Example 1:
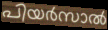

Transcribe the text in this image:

പിയർസാൽ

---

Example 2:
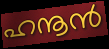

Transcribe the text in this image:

ഹനൂൻ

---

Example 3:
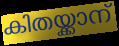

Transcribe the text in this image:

കിതയ്ക്കാന്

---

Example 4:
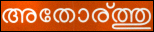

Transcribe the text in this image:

അതോര്ത്തു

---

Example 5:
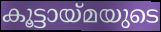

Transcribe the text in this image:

കൂട്ടായ്മയുടെ